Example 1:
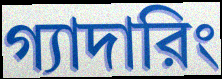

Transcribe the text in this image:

গ্যাদারিং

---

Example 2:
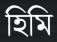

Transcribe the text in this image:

হিমি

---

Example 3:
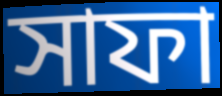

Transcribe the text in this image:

সাফা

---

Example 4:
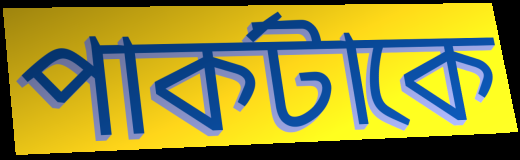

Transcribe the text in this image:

পার্কটাকে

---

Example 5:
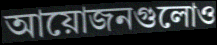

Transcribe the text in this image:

আয়োজনগুলোও